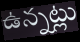
ఉన్నట్లు